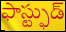
ఫాస్ట్ఫుడ్